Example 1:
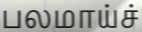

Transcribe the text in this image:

பலமாய்ச்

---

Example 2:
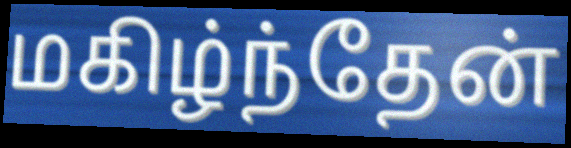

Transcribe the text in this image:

மகிழ்ந்தேன்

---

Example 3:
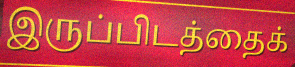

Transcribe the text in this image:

இருப்பிடத்தைக்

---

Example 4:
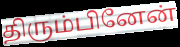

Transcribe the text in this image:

திரும்பினேன்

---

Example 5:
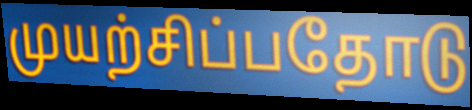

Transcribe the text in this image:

முயற்சிப்பதோடு